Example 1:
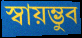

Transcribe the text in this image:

স্বায়ম্ভুব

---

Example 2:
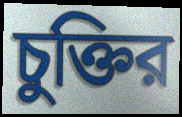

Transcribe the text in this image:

চুক্তির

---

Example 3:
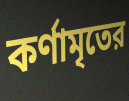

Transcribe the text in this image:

কর্ণামৃতের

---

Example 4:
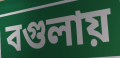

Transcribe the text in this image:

বগুলায়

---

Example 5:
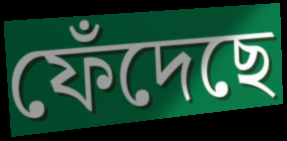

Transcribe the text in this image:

ফেঁদেছে